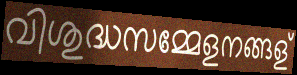
വിശുദ്ധസമ്മേളനങ്ങള്